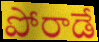
పోరాడే